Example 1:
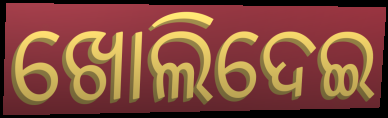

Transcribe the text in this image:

ଖୋଲିଦେଇ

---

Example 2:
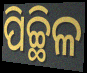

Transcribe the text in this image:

ପିଚ୍ଛିଳ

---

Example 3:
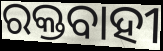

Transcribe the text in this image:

ରକ୍ତବାହୀ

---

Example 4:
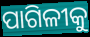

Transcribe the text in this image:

ପାଗିଳୀକୁ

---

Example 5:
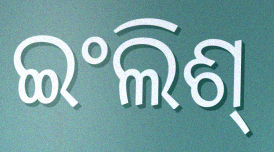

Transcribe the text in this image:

ଇଂଲିଶ୍